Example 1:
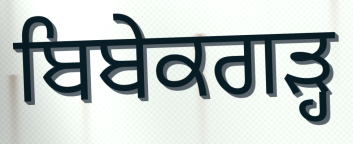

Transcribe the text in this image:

ਬਿਬੇਕਗੜ੍ਹ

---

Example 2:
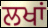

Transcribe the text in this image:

ਲਖਾਂ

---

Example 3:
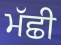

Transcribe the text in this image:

ਮੱਛੀ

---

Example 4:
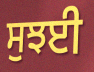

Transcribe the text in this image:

ਸੁਝਈ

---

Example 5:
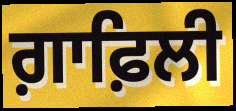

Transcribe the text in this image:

ਗ਼ਾਫ਼ਿਲੀ